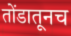
तोंडातूनच